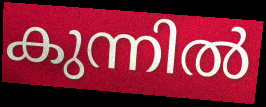
കുന്നിൽ